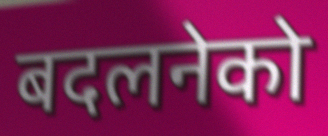
बदलनेको